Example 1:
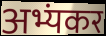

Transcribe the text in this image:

अभ्यंकर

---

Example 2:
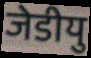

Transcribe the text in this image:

जेडीयु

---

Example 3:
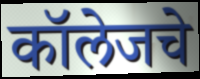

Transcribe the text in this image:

कॉलेजचे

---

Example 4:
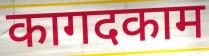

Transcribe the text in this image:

कागदकाम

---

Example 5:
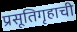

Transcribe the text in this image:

प्रसूतिगृहाची